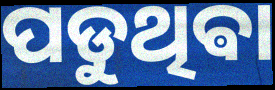
ପଡୁଥିଵା